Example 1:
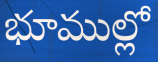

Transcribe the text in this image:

భూముల్లో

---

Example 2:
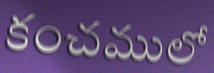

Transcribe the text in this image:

కంచములో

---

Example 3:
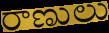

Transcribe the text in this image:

రాణులు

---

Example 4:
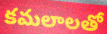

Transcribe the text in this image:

కమలాలతో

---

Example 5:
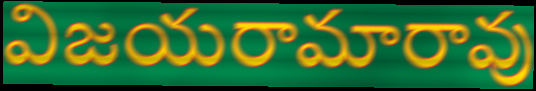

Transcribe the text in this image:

విజయరామారావు